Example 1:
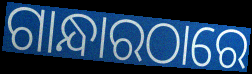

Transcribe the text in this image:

ଗାନ୍ଧାରଠାରେ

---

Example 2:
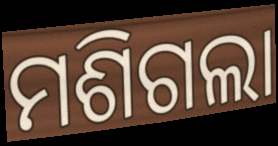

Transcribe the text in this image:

ମଶିଗଲା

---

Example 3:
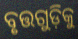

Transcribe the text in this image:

ବୃତ୍ତଗୁଡ଼ିକୁ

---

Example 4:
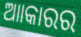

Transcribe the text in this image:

ଆାକାରର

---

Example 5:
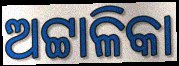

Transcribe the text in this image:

ଅଟ୍ଟାଳିକା